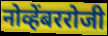
नोव्हेंबररोजी